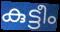
കുട്ടീം